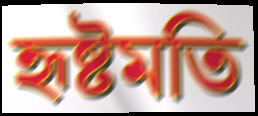
হৃষ্টমতি